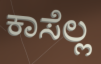
ಕಾಸೆಲ್ಲ